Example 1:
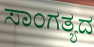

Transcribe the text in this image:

ಸಾಂಗತ್ಯದ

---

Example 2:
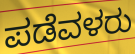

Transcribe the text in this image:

ಪಡೆವಳರು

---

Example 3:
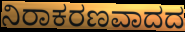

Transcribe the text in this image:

ನಿರಾಕರಣವಾದದ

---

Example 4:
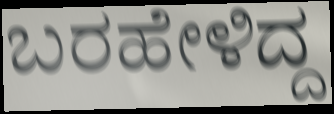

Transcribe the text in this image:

ಬರಹೇಳಿದ್ದ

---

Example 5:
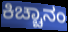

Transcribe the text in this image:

ಕಿಚ್ಚಾನಂ